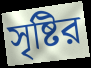
সৃষ্টির